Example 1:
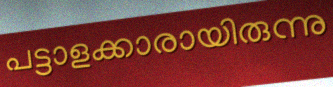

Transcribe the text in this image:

പട്ടാളക്കാരായിരുന്നു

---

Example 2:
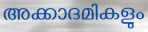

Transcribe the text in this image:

അക്കാദമികളും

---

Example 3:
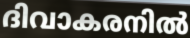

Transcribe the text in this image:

ദിവാകരനിൽ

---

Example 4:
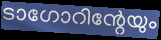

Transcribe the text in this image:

ടാഗോറിന്റേയും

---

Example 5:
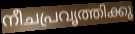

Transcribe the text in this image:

നീചപ്രവൃത്തിക്കു